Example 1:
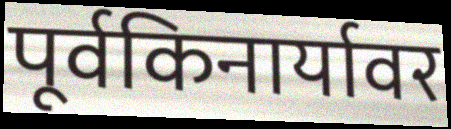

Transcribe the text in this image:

पूर्वकिनार्यावर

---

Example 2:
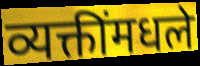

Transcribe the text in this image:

व्यक्तींमधले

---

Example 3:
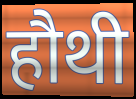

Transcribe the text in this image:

हौथी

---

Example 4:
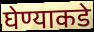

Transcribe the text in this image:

घेण्याकडे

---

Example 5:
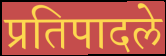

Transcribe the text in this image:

प्रतिपादले